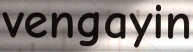
vengayin